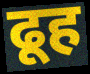
ढूह